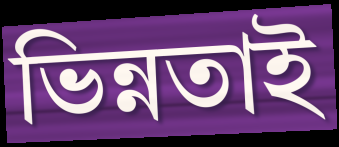
ভিন্নতাই